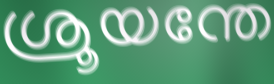
ശ്രൂയന്തേ